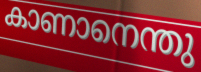
കാണാനെന്തു